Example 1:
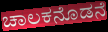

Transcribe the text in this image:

ಚಾಲಕನೊಡನೆ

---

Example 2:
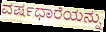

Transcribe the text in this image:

ವರ್ಷಧಾರೆಯನ್ನು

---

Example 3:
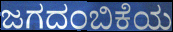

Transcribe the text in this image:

ಜಗದಂಬಿಕೆಯ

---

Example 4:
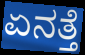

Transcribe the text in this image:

ಏನತ್ತೆ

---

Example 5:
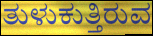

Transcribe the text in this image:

ತುಳುಕುತ್ತಿರುವ